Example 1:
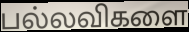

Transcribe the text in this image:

பல்லவிகளை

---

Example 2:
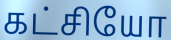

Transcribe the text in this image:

கட்சியோ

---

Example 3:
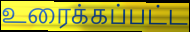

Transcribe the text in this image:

உரைக்கப்பட்ட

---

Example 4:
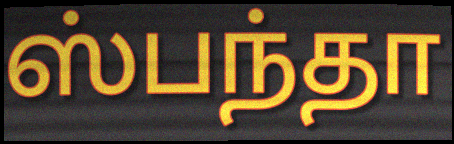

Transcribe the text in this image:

ஸ்பந்தா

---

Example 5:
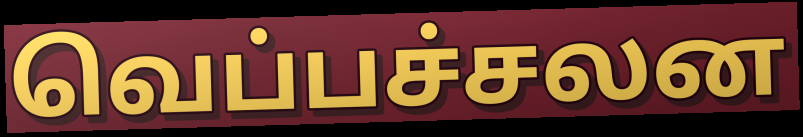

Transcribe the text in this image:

வெப்பச்சலன